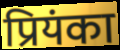
प्रियंका